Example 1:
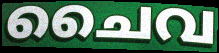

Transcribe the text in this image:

ചൈവ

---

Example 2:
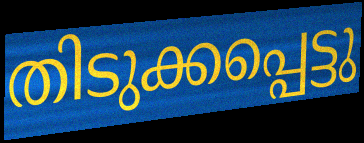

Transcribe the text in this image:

തിടുക്കപ്പെട്ടു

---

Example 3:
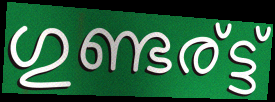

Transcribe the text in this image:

ഗുണ്ടര്ട്ട്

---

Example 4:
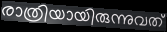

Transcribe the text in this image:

രാത്രിയായിരുന്നുവത്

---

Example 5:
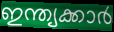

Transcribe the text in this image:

ഇന്ത്യക്കാർ